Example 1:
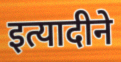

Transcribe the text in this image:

इत्यादीने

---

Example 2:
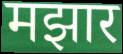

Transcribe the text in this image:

मझार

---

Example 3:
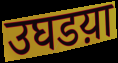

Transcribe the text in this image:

उघडय़ा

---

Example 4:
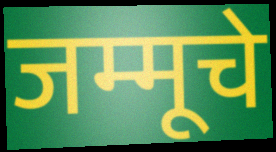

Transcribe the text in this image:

जम्मूचे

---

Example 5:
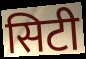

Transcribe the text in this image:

सिटी